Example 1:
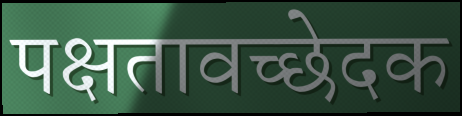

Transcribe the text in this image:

पक्षतावच्छेदक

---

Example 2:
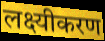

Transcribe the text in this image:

लक्ष्यीकरण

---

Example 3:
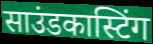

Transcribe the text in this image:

साउंडकास्टिंग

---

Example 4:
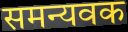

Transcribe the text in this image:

समन्यवक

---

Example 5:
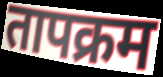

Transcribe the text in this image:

तापक्रम